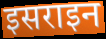
इसराइन